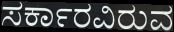
ಸರ್ಕಾರವಿರುವ